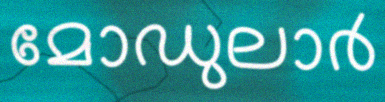
മോഡുലാർ